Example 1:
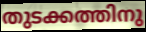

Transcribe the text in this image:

തുടക്കത്തിനു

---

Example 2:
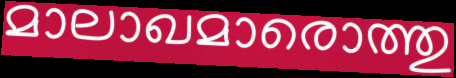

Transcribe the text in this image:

മാലാഖമാരൊത്തു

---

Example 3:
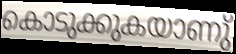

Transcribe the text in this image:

കൊടുക്കുകയാണു്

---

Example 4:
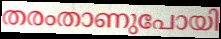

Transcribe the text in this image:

തരംതാണുപോയി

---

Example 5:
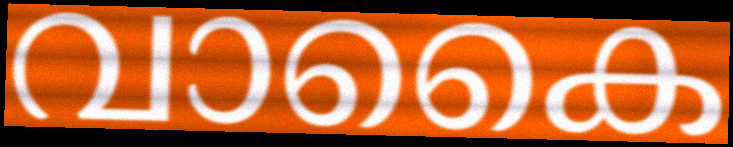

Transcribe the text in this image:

വാകൈ